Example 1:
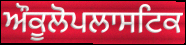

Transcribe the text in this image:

ਔਕੂਲੋਪਲਾਸਟਿਕ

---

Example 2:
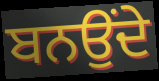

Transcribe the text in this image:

ਬਨਉਂਦੇ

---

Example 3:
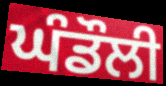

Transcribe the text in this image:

ਘੰਡੌਲੀ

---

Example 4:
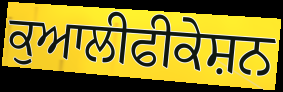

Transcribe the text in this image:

ਕੁਆਲੀਫੀਕੇਸ਼ਨ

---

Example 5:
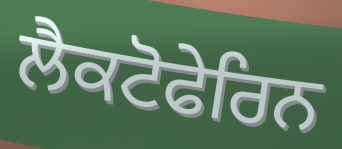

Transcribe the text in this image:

ਲੈਕਟੋਫੇਰਿਨ